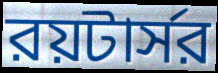
রয়টার্সর